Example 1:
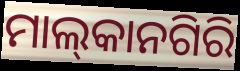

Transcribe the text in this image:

ମାଲ୍‌କାନଗିରି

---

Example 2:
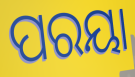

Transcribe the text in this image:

ପରୟା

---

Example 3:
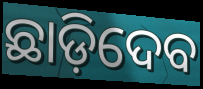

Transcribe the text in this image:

ଛାଡ଼ିଦେବ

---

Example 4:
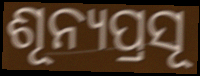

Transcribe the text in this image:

ଶୂନ୍ୟପ୍ରସୂ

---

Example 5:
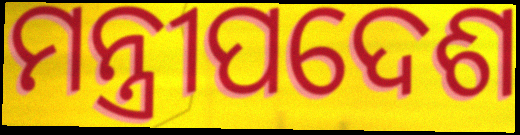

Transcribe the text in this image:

ମନ୍ତ୍ରୀପଦେଶ